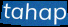
tahap